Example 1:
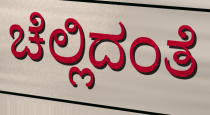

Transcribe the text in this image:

ಚೆಲ್ಲಿದಂತೆ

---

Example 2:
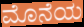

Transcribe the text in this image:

ಮೊನೆಯ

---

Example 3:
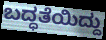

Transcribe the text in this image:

ಬದ್ಧತೆಯಿದ್ದು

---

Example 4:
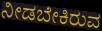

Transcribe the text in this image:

ನೀಡಬೇಕಿರುವ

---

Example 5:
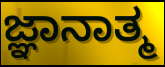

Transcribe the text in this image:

ಜ್ಞಾನಾತ್ಮ